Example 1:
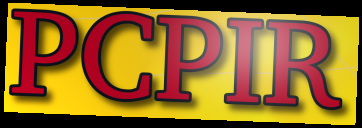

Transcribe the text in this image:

PCPIR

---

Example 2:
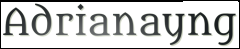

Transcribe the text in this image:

Adrianayng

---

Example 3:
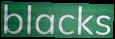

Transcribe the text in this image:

blacks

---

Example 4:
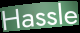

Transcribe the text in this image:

Hassle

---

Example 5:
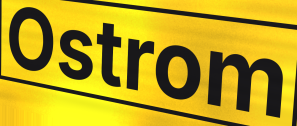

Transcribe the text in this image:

Ostrom